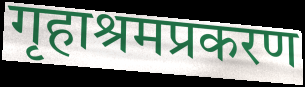
गृहाश्रमप्रकरण